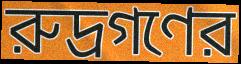
রুদ্রগণের